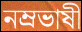
নম্রভাষী